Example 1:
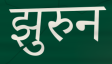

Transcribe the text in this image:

झुरुन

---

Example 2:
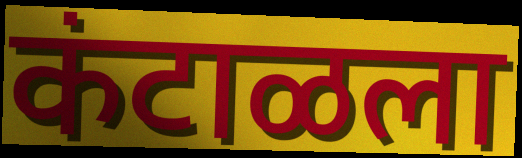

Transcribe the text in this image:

कंटाळला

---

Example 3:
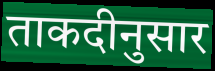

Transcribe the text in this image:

ताकदीनुसार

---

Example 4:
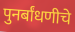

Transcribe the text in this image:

पुनर्बांधणीचे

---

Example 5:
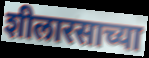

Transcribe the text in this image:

शीलारसाच्या